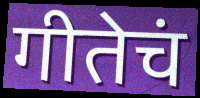
गीतेचं